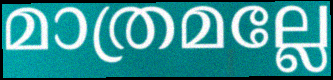
മാത്രമല്ലേ